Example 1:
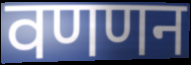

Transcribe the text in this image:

वणणन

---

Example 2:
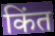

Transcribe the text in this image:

किंत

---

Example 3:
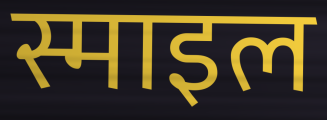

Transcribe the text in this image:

स्माइल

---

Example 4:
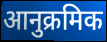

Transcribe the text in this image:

आनुक्रमिक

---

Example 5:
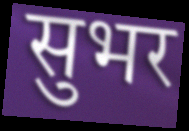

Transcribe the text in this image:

सुभर